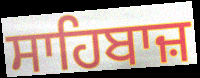
ਸਾਹਿਬਾਜ਼